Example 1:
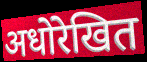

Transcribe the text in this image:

अधोरेखित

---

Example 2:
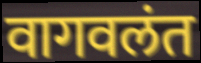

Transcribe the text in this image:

वागवलंत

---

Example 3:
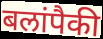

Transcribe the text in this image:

बलांपैकी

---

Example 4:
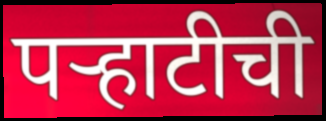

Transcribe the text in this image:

पऱ्हाटीची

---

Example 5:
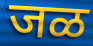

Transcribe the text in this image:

जळ